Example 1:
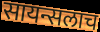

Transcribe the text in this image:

सायन्सलाच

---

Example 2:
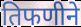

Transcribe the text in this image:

तिफणीने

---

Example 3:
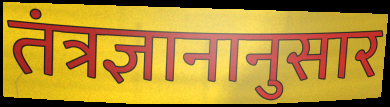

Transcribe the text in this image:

तंत्रज्ञानानुसार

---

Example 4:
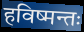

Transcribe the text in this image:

हविष्मन्तः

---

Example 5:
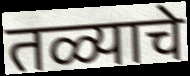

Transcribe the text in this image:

तळ्याचे